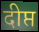
दीप्त